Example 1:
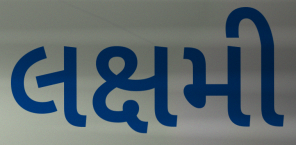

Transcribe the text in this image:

લક્ષમી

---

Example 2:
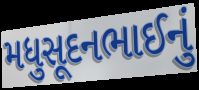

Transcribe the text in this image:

મધુસૂદનભાઈનું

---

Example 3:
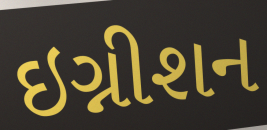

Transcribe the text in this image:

ઇગ્નીશન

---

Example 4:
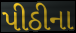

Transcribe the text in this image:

પીઠીના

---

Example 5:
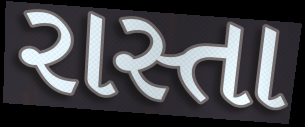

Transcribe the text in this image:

રાસ્તા